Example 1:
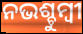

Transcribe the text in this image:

ନଭଶ୍ଚୁମ୍ବୀ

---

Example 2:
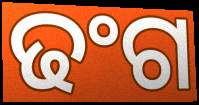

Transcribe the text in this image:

ଢଂଗ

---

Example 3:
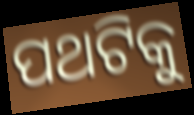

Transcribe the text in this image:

ପଥଟିକୁ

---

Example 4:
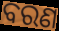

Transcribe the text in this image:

ବରଣ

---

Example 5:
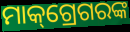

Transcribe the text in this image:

ମାକ୍‌ଗ୍ରେଗରଙ୍କ